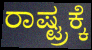
ರಾಷ್ಟ್ರಕ್ಕೆ